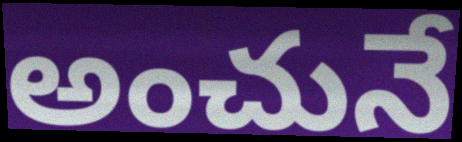
అంచునే